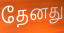
தேனது